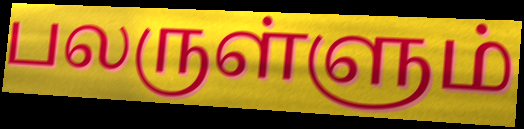
பலருள்ளும்